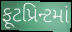
ફૂટપ્રિન્ટમાં